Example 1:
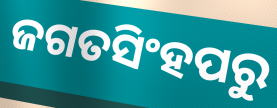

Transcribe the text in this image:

ଜଗତସିଂହପରୁ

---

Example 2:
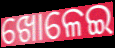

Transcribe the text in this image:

ଖୋଳେଇ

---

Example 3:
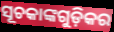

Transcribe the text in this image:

ସୂଚକାଙ୍କଗୁଡ଼ିକର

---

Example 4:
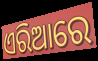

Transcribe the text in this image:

ଏରିଆରେ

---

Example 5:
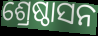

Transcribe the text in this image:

ଶ୍ରେଷ୍ଠାସନ